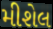
મીશેલ